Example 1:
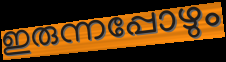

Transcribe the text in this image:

ഇരുന്നപ്പോഴും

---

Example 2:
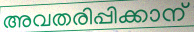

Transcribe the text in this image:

അവതരിപ്പിക്കാന്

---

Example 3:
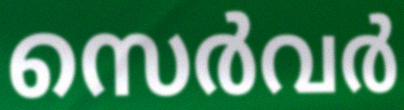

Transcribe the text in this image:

സെർവർ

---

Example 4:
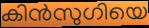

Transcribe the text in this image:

കിൻസുഗിയെ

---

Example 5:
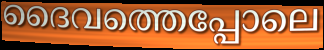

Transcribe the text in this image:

ദൈവത്തെപ്പോലെ